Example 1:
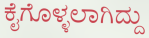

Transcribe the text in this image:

ಕೈಗೊಳ್ಳಲಾಗಿದ್ದು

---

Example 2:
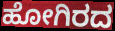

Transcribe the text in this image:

ಹೋಗಿರದ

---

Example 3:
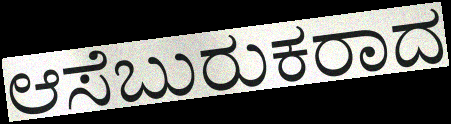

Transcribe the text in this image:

ಆಸೆಬುರುಕರಾದ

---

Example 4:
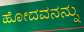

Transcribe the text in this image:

ಹೋದವನನ್ನು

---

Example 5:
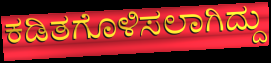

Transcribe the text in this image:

ಕಡಿತಗೊಳಿಸಲಾಗಿದ್ದು